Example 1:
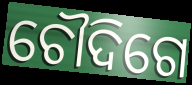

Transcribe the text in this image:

ଚୌଦିଗେ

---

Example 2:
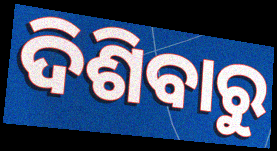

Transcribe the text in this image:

ଦିଶିବାରୁ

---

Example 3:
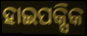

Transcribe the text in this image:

ହାଇପକ୍ସିକ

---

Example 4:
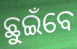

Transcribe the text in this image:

ଛୁଇଁବେ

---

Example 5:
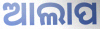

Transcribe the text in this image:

ଆଲାପ